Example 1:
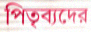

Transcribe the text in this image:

পিতৃব্যদের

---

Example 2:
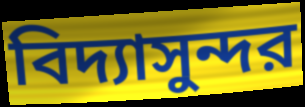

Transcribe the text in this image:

বিদ্যাসুন্দর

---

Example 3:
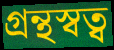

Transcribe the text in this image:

গ্রন্থস্বত্ব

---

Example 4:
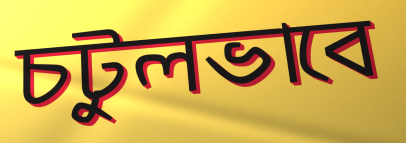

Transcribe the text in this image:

চটুলভাবে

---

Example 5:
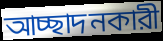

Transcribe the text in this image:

আচ্ছাদনকারী